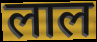
लाल